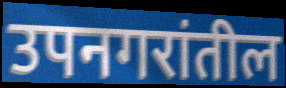
उपनगरांतील